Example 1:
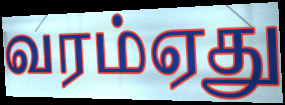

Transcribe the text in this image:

வரம்ஏது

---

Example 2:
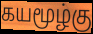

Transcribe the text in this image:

கயமூழ்கு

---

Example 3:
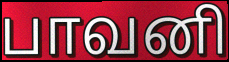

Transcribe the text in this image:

பாவனி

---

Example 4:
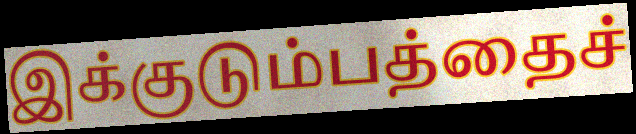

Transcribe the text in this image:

இக்குடும்பத்தைச்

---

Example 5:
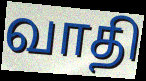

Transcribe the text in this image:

வாதி